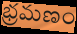
భ్రమణం